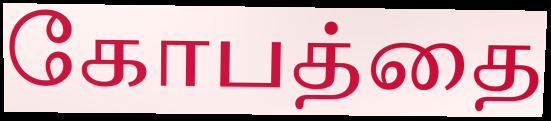
கோபத்தை